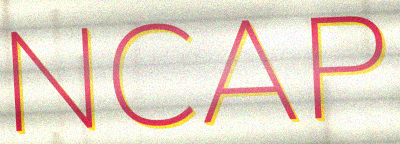
NCAP